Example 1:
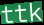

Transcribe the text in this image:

ttk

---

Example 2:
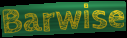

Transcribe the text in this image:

Barwise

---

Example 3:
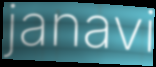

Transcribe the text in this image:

janavi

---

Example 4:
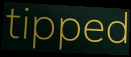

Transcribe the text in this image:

tipped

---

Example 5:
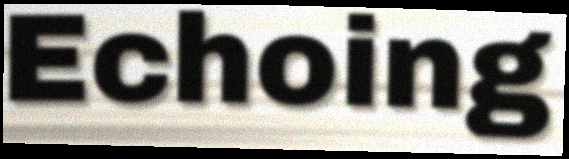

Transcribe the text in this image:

Echoing